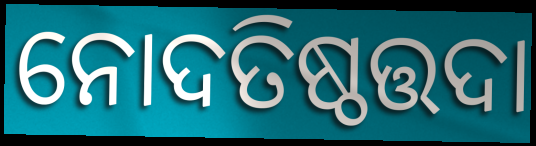
ନୋଦତିଷ୍ଠତ୍ତଦା